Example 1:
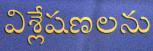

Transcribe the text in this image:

విశ్లేషణలను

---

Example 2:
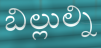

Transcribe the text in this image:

బిల్లుల్ని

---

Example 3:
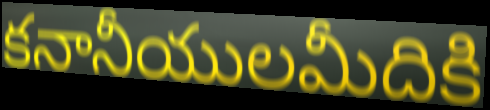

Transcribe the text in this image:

కనానీయులమీదికి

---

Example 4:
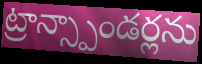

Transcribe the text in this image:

ట్రాన్స్పాండర్లను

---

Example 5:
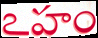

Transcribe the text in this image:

ఽహం